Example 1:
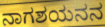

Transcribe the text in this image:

ನಾಗಶಯನನ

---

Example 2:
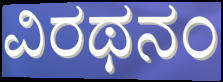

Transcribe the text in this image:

ವಿರಥನಂ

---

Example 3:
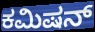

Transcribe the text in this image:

ಕಮಿಷನ್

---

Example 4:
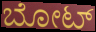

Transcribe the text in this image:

ಬೋಟ್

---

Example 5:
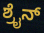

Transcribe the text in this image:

ಶ್ರೈನ್